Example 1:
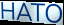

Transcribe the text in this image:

HATO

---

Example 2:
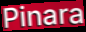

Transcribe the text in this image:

Pinara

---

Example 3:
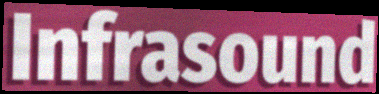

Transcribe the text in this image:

Infrasound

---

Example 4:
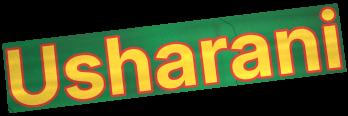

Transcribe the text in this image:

Usharani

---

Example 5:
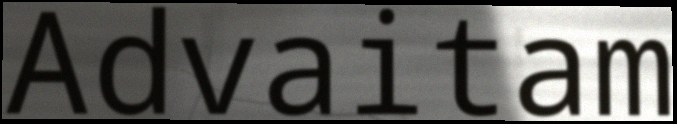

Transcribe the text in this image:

Advaitam